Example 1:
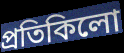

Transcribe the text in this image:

প্ৰতিকিলো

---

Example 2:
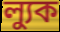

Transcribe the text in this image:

ল্যুক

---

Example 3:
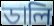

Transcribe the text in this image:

ডালি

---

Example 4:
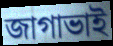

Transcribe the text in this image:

জাগাভাই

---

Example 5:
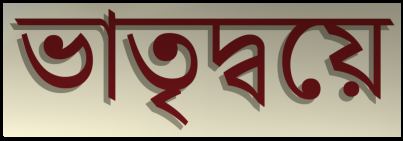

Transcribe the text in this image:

ভাতৃদ্বয়ে